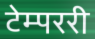
टेम्पररी